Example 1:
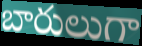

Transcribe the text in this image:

బారులుగా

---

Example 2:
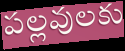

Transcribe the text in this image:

పల్లవులకు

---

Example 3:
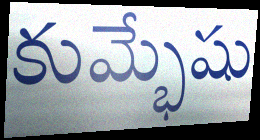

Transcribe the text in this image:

కుమ్భేషు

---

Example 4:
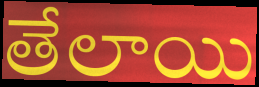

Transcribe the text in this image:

తేలాయి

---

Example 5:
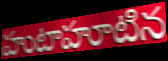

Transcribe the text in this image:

హుటాహూటిన